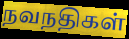
நவநதிகள்